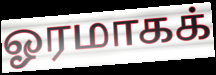
ஓரமாகக்